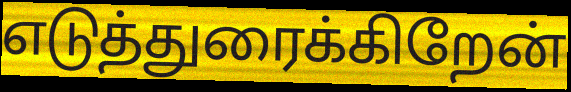
எடுத்துரைக்கிறேன்